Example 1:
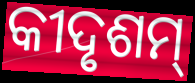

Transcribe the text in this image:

କୀଦୃଶମ୍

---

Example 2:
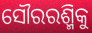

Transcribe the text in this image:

ସୌରରଶ୍ମିକୁ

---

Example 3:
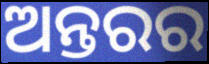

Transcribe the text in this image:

ଅନ୍ତରର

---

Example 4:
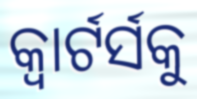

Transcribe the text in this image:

କ୍ୱାର୍ଟର୍ସକୁ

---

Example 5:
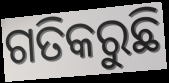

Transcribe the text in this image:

ଗତିକରୁଛି